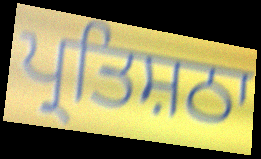
ਪ੍ਰਤਿਸ਼ਠਾ